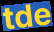
tde